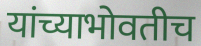
यांच्याभोवतीच